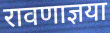
रावणाज्ञया